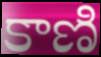
కాణి